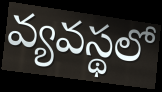
వ్యవస్థలో